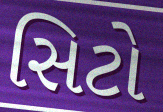
સિટો